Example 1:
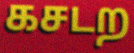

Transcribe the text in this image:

கசடற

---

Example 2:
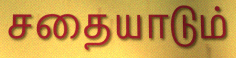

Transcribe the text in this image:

சதையாடும்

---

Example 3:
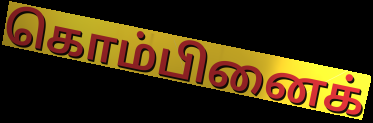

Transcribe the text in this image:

கொம்பினைக்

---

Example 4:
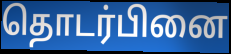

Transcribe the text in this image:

தொடர்பினை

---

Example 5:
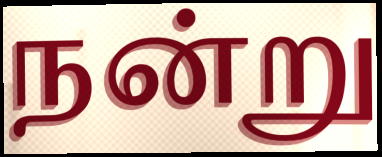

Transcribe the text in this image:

நன்று